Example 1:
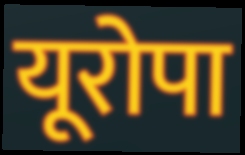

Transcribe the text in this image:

यूरोपा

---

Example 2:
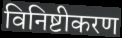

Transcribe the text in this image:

विनिष्टीकरण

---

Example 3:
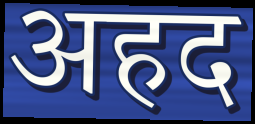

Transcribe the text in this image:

अहद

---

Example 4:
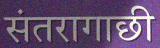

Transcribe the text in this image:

संतरागाछी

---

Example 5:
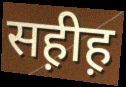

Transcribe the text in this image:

सह़ीह़